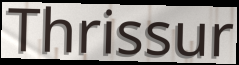
Thrissur